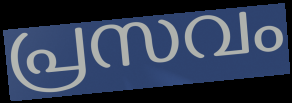
പ്രസവം